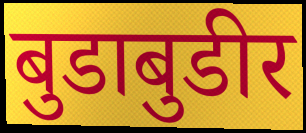
बुडाबुडीर